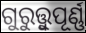
ଗୁରୁତ୍ତ୍ୱୁପୂର୍ଣ୍ଣ